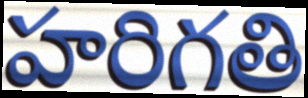
హరిగతి